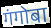
गंगोबा